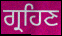
ਗ੍ਰਹਿਣ